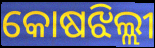
କୋଷଝିଲ୍ଲୀ